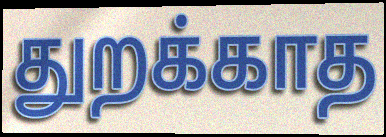
துறக்காத